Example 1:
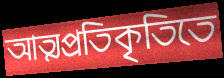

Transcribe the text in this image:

আত্মপ্রতিকৃতিতে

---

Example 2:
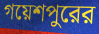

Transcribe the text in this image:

গয়েশপুরের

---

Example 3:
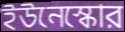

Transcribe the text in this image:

ইউনেস্কোর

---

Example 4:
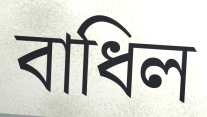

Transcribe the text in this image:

বাধিল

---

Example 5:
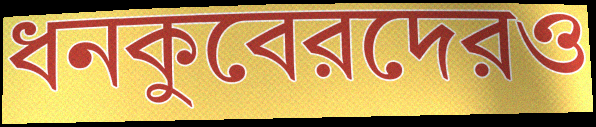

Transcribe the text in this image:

ধনকুবেরদেরও